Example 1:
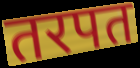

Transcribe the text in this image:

तरपत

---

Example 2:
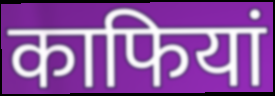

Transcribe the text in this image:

काफियां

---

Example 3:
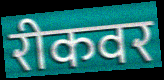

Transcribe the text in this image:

रीकवर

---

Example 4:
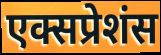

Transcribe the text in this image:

एक्सप्रेशंस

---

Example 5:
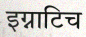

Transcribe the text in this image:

इग्नाटिच